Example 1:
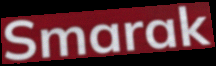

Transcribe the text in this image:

Smarak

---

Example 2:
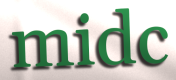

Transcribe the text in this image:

midc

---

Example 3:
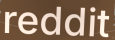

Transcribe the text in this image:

reddit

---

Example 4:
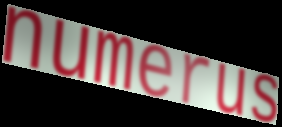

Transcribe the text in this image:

numerus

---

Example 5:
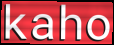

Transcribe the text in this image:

kaho